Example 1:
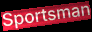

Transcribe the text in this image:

Sportsman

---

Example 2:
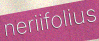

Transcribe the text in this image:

neriifolius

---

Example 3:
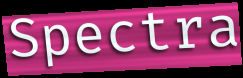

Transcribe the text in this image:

Spectra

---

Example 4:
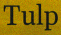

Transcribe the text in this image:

Tulp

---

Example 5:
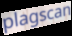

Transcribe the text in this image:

plagscan